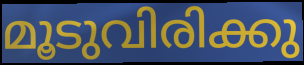
മൂടുവിരിക്കു